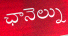
ఛానెల్ను